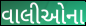
વાલીઓના